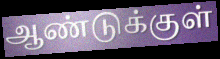
ஆண்டுக்குள்